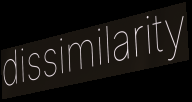
dissimilarity